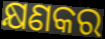
କ୍ଷଣକର